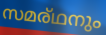
സമര്ഥനും